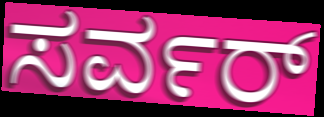
ಸರ್ವರ್